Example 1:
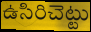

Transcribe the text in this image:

ఉసిరిచెట్టు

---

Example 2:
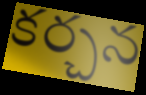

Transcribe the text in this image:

కర్చన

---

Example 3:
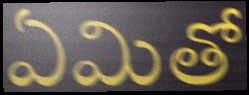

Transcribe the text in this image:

ఏమితో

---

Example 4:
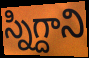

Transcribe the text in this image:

స్నిగ్దాని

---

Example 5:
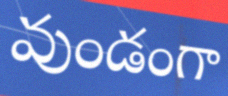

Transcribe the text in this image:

వుండంగా